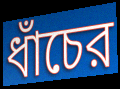
ধাঁচের